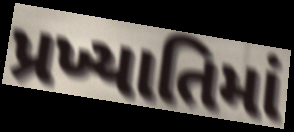
પ્રખ્યાતિમાં